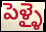
పెళ్ళై